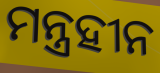
ମନ୍ତ୍ରହୀନ